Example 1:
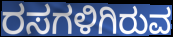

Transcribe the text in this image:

ರಸಗಳಿಗಿರುವ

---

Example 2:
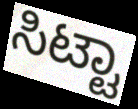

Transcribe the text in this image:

ಸಿಟ್ಟಾ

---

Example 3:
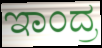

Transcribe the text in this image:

ಇಾಂದ್ರ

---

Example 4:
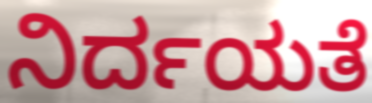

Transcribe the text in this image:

ನಿರ್ದಯತೆ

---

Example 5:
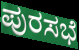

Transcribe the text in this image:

ಪುರಸಭೆ